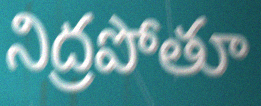
నిద్రపోతూ